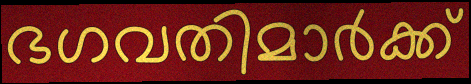
ഭഗവതിമാർക്ക്